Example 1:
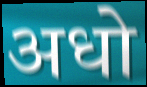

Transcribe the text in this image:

अधो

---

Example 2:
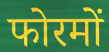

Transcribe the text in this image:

फोरमों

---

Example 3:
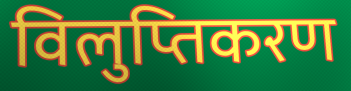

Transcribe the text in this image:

विलुप्तिकरण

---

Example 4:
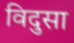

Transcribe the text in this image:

विदुसा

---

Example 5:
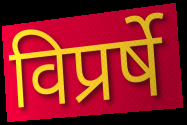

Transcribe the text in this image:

विप्रर्षे